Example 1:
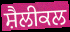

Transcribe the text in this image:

ਸ਼ੈਲੀਕਲ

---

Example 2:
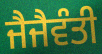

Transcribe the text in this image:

ਜੈਜੈਵੰਤੀ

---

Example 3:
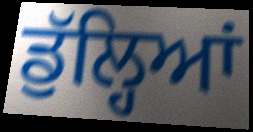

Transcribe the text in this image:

ਡੁੱਲ੍ਹਿਆਂ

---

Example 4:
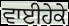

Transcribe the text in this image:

ਵਾਈਹੇਕੇ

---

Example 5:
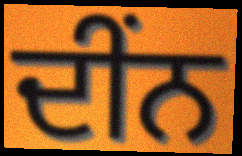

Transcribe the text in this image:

ਦੀਂਨ